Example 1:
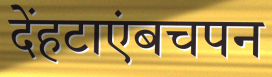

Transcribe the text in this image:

देंहटाएंबचपन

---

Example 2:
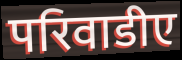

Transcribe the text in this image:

परिवाडीए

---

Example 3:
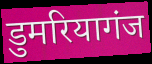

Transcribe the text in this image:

डुमरियागंज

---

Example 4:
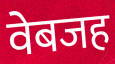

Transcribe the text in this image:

वेबजह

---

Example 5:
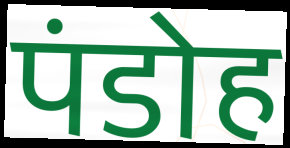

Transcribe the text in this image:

पंडोह